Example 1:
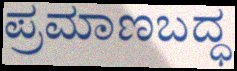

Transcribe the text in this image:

ಪ್ರಮಾಣಬದ್ಧ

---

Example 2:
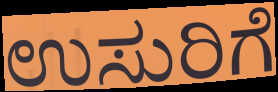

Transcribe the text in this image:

ಉಸುರಿಗೆ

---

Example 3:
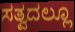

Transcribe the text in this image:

ಸತ್ವದಲ್ಲೂ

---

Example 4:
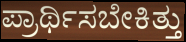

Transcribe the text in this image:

ಪ್ರಾರ್ಥಿಸಬೇಕಿತ್ತು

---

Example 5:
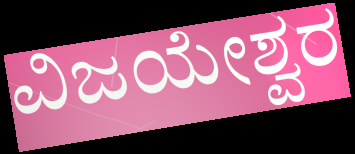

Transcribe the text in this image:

ವಿಜಯೇಶ್ವರ